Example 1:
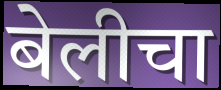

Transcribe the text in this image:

बेलीचा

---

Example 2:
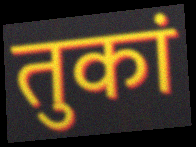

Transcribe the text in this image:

तुकां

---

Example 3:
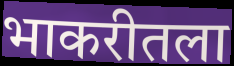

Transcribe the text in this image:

भाकरीतला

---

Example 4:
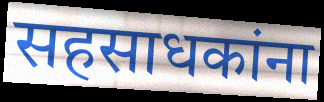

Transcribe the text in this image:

सहसाधकांना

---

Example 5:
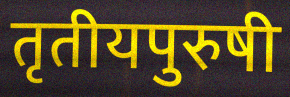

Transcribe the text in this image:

तृतीयपुरुषी